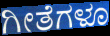
ಗೀತೆಗಳೂ